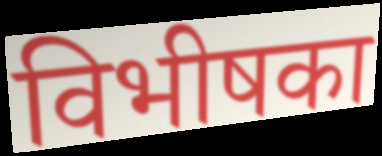
विभीषका